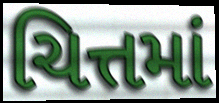
ચિત્તમાં